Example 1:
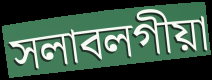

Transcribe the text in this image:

সলাবলগীয়া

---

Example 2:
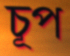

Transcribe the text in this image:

চূপ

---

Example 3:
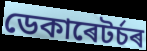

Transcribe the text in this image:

ডেকাৰেটৰ্চৰ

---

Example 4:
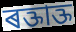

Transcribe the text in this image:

ৰক্তাক্ত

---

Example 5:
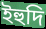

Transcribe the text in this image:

ইহুদি